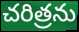
చరిత్రను